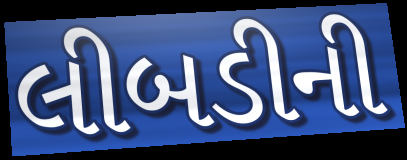
લીબડીની